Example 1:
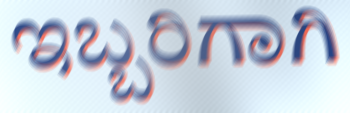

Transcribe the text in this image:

ಇಬ್ಬರಿಗಾಗಿ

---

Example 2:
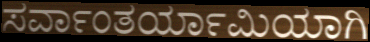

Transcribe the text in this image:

ಸರ್ವಾಂತರ್ಯಾಮಿಯಾಗಿ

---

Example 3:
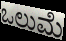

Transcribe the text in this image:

ಒಲುಮೆ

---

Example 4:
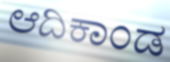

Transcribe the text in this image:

ಆದಿಕಾಂಡ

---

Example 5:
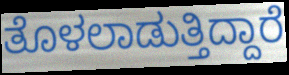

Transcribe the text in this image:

ತೊಳಲಾಡುತ್ತಿದ್ದಾರೆ